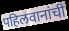
पहिलवानांची